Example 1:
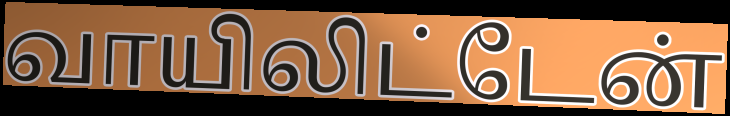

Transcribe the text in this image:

வாயிலிட்டேன்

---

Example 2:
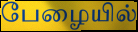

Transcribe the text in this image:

பேழையில்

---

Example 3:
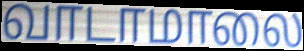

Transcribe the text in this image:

வாடாமாலை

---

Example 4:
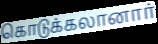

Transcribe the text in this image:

கொடுக்கலானார்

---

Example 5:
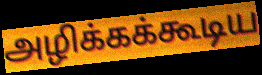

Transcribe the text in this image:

அழிக்கக்கூடிய